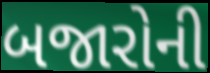
બજારોની